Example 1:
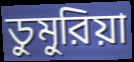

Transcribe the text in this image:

ডুমুরিয়া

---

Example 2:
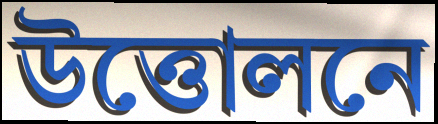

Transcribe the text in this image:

উত্তোলনে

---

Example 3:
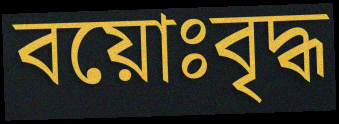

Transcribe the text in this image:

বয়োঃবৃদ্ধ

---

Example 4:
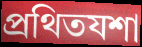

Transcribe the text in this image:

প্রথিতযশা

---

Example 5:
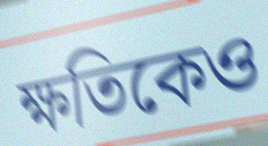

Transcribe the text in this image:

ক্ষতিকেও